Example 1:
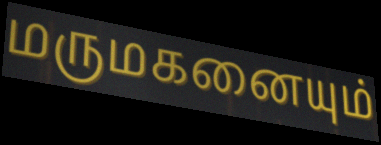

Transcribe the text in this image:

மருமகனையும்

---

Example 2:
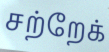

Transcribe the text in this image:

சற்றேக்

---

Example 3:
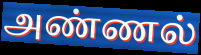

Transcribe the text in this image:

அண்ணல்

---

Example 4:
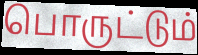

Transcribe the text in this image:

பொருட்டும்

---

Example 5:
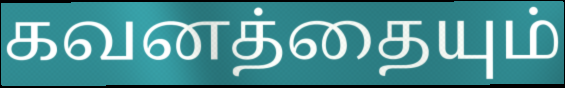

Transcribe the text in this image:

கவனத்தையும்